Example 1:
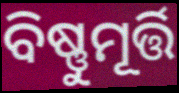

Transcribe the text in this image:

ବିଷ୍ଣୁମୂର୍ତ୍ତି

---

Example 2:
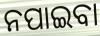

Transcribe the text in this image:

ନପାଇବା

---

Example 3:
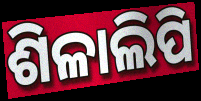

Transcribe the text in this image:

ଶିଳାଲିପି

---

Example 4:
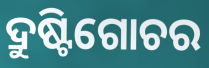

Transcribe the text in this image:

ଦ୍ରୁଷ୍ଟିଗୋଚର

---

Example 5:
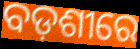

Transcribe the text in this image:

ବଡ଼ଶୀରେ